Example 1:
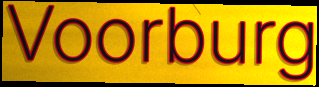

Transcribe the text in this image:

Voorburg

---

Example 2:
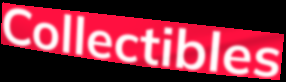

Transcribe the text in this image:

Collectibles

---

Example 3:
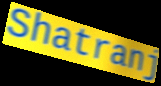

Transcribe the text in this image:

Shatranj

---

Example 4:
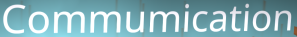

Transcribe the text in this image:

Commumication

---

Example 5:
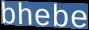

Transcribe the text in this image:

bhebe